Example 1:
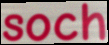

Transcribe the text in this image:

soch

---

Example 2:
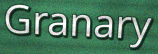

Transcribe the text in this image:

Granary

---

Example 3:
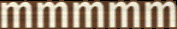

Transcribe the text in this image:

mmmmm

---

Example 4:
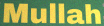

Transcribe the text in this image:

Mullah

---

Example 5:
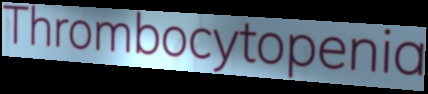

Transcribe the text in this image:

Thrombocytopenia